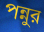
পন্নুর